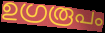
ഉഗ്രരൂപം